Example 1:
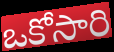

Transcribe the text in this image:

ఒకోసారి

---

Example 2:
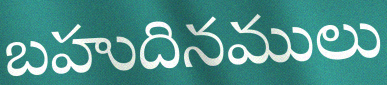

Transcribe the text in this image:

బహుదినములు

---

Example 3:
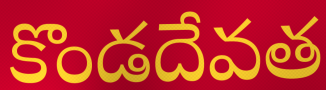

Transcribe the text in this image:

కొండదేవత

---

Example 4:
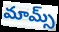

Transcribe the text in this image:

మామ్స్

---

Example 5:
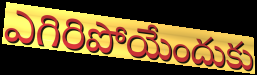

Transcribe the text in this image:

ఎగిరిపోయేందుకు